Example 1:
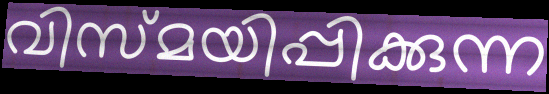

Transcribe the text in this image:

വിസ്മയിപ്പിക്കുന്ന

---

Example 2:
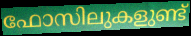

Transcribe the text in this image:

ഫോസിലുകളുണ്ട്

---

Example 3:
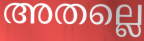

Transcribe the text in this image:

അതല്ലെ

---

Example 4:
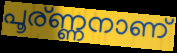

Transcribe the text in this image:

പൂര്ണ്ണനാണ്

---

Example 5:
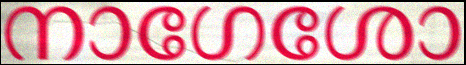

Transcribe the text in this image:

നാഗേശോ